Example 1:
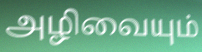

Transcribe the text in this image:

அழிவையும்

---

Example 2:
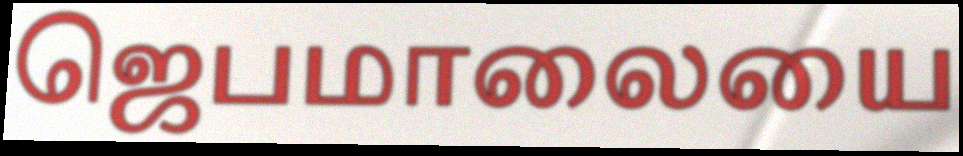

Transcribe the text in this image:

ஜெபமாலையை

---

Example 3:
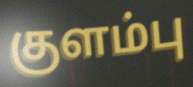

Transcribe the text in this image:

குளம்பு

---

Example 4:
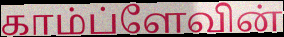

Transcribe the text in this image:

காம்ப்ளேவின்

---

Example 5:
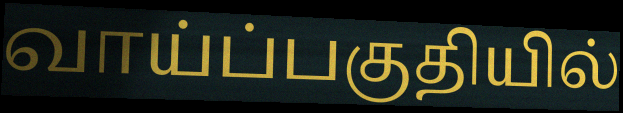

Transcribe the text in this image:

வாய்ப்பகுதியில்